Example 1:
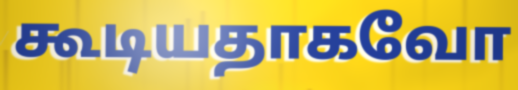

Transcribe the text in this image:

கூடியதாகவோ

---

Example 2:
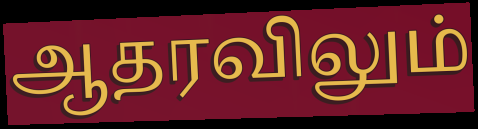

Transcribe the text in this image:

ஆதரவிலும்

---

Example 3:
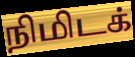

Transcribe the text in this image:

நிமிடக்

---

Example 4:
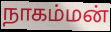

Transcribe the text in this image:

நாகம்மன்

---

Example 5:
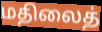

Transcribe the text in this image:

மதிலைத்